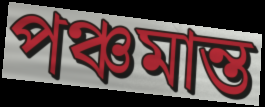
পঞ্চমান্ত